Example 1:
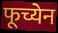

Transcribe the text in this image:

फूच्येन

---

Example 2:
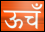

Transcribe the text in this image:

ऊचँ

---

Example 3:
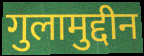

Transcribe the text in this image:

गुलामुद्दीन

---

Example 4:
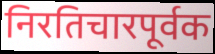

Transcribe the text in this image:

निरतिचारपूर्वक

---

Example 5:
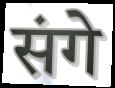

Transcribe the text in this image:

संगे